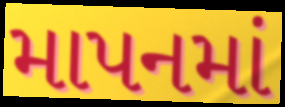
માપનમાં